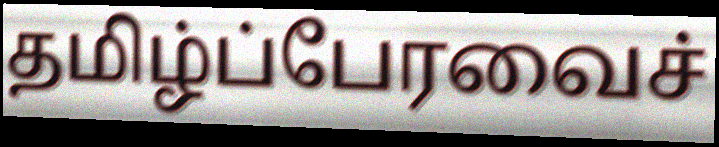
தமிழ்ப்பேரவைச்